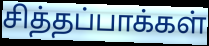
சித்தப்பாக்கள்